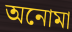
অনোমা